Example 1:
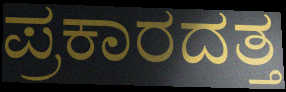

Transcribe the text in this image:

ಪ್ರಕಾರದತ್ತ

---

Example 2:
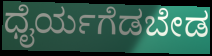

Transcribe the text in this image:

ಧೈರ್ಯಗೆಡಬೇಡ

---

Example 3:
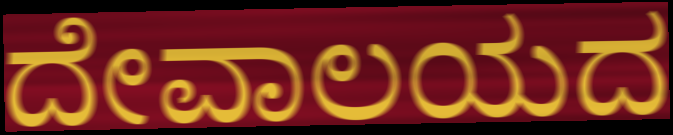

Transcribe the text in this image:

ದೇವಾಲಯದ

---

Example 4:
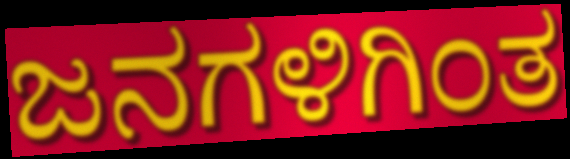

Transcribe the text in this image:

ಜನಗಳಿಗಿಂತ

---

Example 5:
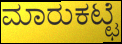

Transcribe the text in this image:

ಮಾರುಕಟ್ಟೆ